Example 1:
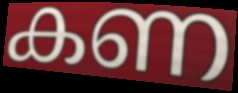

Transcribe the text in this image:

കണ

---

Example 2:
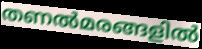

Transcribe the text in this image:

തണൽമരങ്ങളിൽ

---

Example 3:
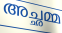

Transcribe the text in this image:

അച്ഛമ്മ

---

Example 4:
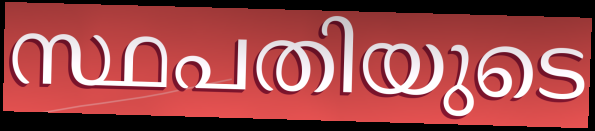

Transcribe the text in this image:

സ്ഥപതിയുടെ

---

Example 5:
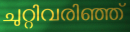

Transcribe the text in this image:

ചുറ്റിവരിഞ്ഞ്